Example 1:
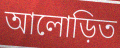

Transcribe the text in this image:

আলোড়িত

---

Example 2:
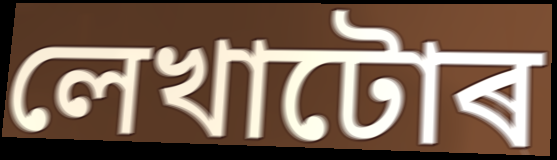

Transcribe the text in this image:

লেখাটোৰ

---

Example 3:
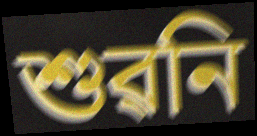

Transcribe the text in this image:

শুৱনি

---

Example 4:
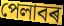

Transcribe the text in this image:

পেলাবৰ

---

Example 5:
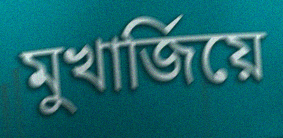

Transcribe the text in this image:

মুখাৰ্জিয়ে